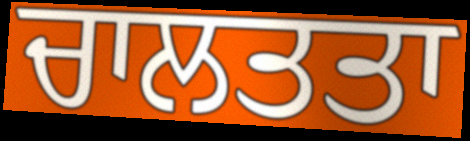
ਚਾਲਤਤਾ